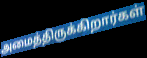
அமைத்திருக்கிறார்கள்